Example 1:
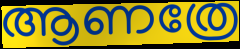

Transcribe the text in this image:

ആണത്രേ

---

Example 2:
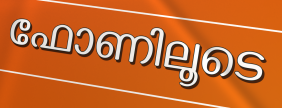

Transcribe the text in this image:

ഫോണിലൂടെ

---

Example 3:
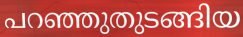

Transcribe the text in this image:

പറഞ്ഞുതുടങ്ങിയ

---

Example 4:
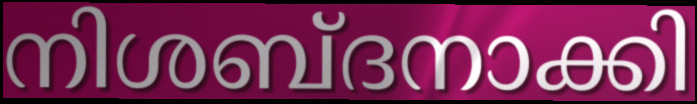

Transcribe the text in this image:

നിശബ്ദനാക്കി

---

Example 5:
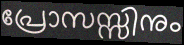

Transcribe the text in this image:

പ്രോസസ്സിനും